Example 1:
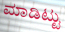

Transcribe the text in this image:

ಮಾಡಿಟ್ಟು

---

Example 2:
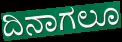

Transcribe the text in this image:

ದಿನಾಗಲೂ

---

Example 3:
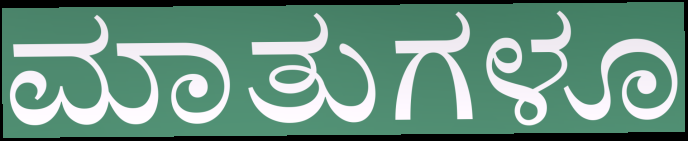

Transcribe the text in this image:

ಮಾತುಗಳೂ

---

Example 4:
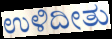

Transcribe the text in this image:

ಉಳಿದೀತು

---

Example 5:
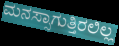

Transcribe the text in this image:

ಮನಸ್ಸಾಗುತ್ತಿರಲಿಲ್ಲ